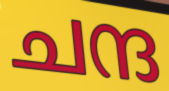
ചന്ദ